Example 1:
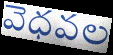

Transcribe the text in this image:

వెధవల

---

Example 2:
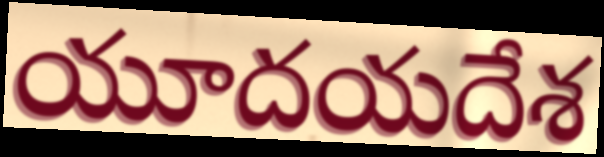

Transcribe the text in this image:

యూదయదేశ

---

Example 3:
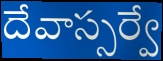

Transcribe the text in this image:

దేవాస్సర్వే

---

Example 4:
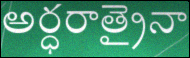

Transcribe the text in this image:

అర్ధరాత్రైనా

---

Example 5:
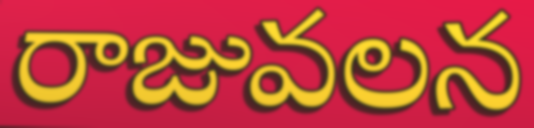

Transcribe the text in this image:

రాజువలన